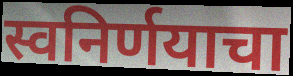
स्वनिर्णयाचा